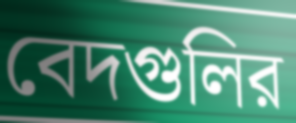
বেদগুলির